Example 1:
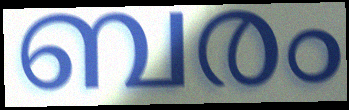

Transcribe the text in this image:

ബരം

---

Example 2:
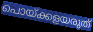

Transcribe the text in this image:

പൊയ്ക്കളയരുത്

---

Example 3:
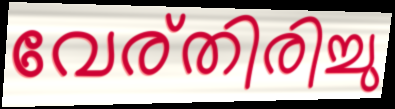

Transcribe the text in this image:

വേര്തിരിച്ചു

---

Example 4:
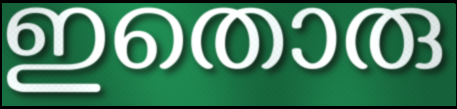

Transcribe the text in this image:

ഇതൊരു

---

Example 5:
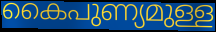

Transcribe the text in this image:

കൈപുണ്യമുള്ള